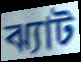
ঝ্যাট